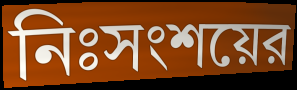
নিঃসংশয়ের